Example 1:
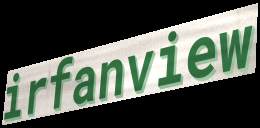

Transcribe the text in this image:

irfanview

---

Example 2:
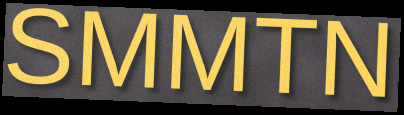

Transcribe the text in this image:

SMMTN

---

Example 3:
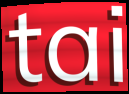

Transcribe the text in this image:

tai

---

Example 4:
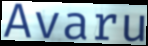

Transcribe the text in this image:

Avaru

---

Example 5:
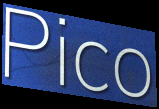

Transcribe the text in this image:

Pico